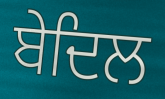
ਬੇਦਿਲ